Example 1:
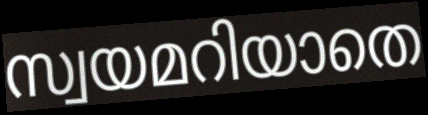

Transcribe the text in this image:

സ്വയമറിയാതെ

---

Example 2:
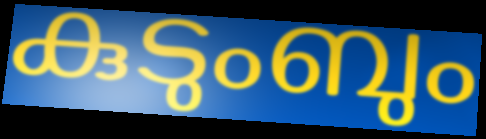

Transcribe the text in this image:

കുടുംബും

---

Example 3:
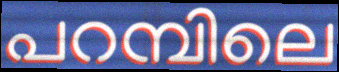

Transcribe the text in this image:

പറമ്പിലെ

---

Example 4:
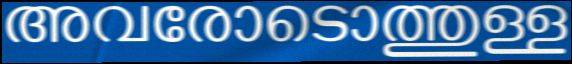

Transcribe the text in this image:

അവരോടൊത്തുള്ള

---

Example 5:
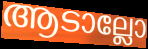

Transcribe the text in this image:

ആടാല്ലോ